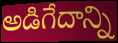
అడిగేదాన్ని